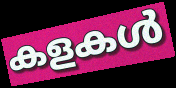
കളകൾ